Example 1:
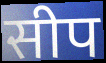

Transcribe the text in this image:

सीप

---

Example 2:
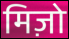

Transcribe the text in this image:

मिज़ो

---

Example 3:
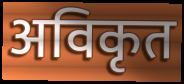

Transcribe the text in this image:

अविकृत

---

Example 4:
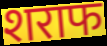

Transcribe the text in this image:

शराफ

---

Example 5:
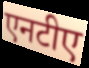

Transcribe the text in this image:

एनटीए